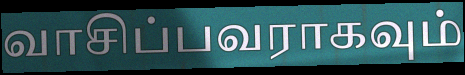
வாசிப்பவராகவும்